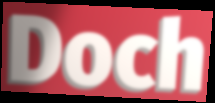
Doch